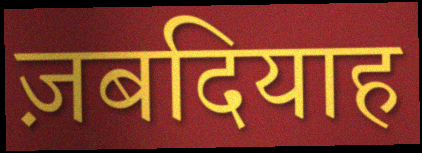
ज़बदियाह